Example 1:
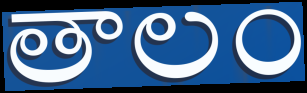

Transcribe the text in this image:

తాలం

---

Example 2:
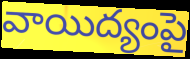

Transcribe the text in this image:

వాయిద్యంపై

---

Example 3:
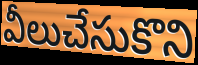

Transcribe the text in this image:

వీలుచేసుకొని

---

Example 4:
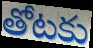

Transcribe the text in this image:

తోటకు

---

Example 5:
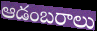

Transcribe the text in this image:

ఆడంబరాలు